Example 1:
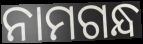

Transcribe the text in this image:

ନାମଗନ୍ଧ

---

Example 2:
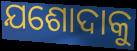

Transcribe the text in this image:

ଯଶୋଦାକୁ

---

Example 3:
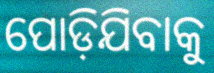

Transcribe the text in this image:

ପୋଡ଼ିଯିବାକୁ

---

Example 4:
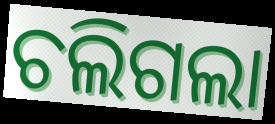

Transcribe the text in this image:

ଚଲିଗଲା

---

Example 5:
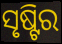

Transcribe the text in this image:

ସୃଷ୍ଟିର